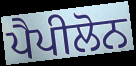
ਪੈਪੀਲੋਨ